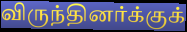
விருந்தினர்க்குக்